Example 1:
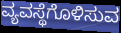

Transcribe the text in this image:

ವ್ಯವಸ್ಥೆಗೊಳಿಸುವ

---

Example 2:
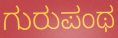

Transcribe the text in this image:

ಗುರುಪಂಥ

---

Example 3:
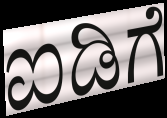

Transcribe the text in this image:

ಐಡಿಗೆ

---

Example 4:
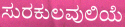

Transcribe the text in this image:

ಸುರಕುಲವುಲಿಯೆ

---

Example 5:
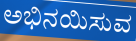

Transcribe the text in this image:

ಅಭಿನಯಿಸುವ